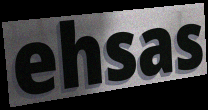
ehsas